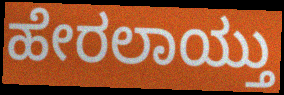
ಹೇರಲಾಯ್ತು